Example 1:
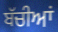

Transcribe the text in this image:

ਬੱਚੀਆਂ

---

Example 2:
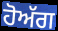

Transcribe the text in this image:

ਹੋਅੱਗ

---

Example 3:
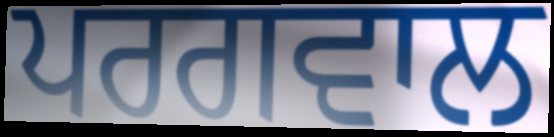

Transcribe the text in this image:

ਪਰਗਵਾਲ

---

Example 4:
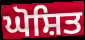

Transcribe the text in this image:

ਘੋਸ਼ਿਤ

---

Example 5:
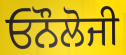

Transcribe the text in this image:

ਓਨੌਲੋਜੀ